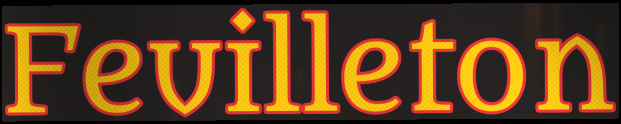
Feuilleton